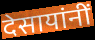
देसायांनीं